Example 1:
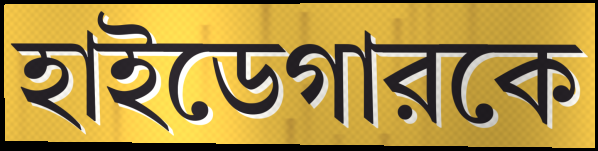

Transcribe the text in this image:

হাইডেগারকে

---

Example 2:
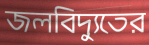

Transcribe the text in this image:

জলবিদ্যুতের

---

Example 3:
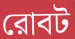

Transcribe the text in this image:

রোবট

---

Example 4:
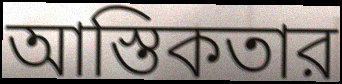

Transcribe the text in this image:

আস্তিকতার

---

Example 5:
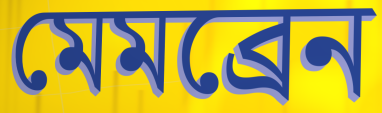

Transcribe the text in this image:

মেমব্রেন